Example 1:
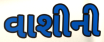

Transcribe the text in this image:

વાશીની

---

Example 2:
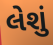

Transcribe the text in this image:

લેશું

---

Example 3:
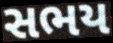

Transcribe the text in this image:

સભય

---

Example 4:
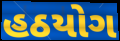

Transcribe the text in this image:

હઠયોગ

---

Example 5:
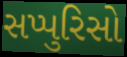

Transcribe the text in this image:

સપ્પુરિસો